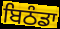
ਬਿਠੰਡਾ